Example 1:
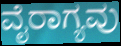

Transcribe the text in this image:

ವೈರಾಗ್ಯವು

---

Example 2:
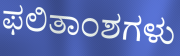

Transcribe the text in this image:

ಫಲಿತಾಂಶಗಳು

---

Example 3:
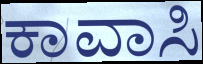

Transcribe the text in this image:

ಕಾವಾಸಿ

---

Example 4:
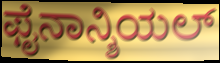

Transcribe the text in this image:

ಫೈನಾನ್ಶಿಯಲ್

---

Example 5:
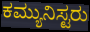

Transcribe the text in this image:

ಕಮ್ಯುನಿಸ್ಟರು